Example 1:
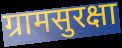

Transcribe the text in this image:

ग्रामसुरक्षा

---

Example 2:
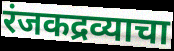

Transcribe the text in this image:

रंजकद्रव्याचा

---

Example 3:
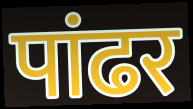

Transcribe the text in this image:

पांढर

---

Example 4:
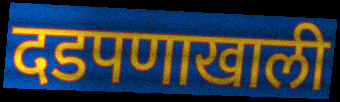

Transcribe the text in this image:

दडपणाखाली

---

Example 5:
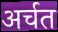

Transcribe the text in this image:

अर्चत